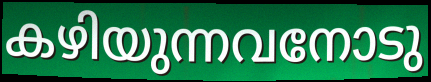
കഴിയുന്നവനോടു